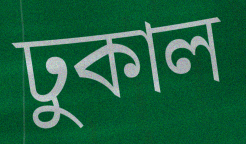
ঢুকাল